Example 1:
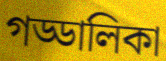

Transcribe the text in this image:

গড্ডালিকা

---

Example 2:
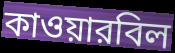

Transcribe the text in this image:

কাওয়ারবিল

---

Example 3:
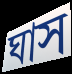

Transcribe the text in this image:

ঘাস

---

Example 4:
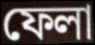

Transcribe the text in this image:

ফেলা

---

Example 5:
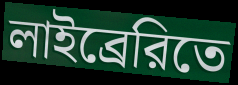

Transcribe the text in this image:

লাইব্রেরিতে